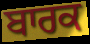
ਬਾਰਕ